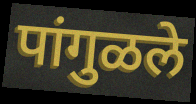
पांगुळले